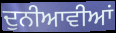
ਦੁਨੀਆਵੀਆਂ